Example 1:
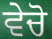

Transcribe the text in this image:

ਵੇਚੋ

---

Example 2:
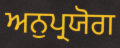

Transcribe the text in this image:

ਅਨੁਪ੍ਰਯੋਗ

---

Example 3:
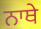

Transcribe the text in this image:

ਨਾਥੇ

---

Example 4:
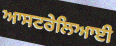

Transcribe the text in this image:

ਆਸਟਰੇਲਿਆਈ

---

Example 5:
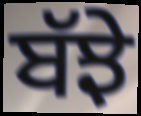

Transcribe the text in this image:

ਬੱਝੇ